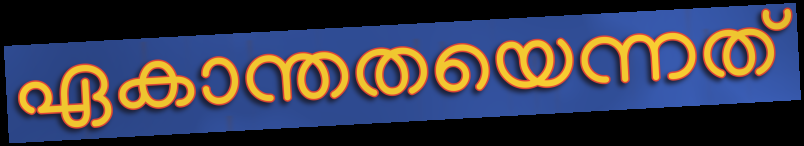
ഏകാന്തതയെന്നത്